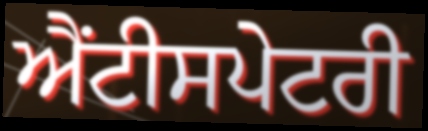
ਐਂਟੀਸਪੇਟਰੀ